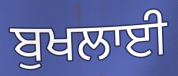
ਬੁਖਲਾਈ